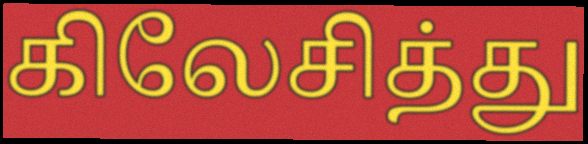
கிலேசித்து